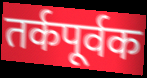
तर्कपूर्वक